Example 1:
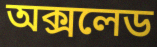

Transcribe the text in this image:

অক্সলেড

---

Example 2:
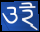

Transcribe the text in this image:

ওই্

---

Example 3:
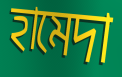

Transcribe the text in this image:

হামেদা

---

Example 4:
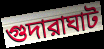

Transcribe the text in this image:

গুদারাঘাট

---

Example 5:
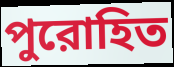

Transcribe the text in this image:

পুরোহিত